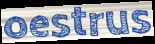
oestrus